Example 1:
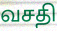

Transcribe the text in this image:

வசதி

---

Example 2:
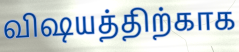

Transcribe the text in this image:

விஷயத்திற்காக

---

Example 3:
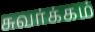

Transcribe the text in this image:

சுவர்க்கம்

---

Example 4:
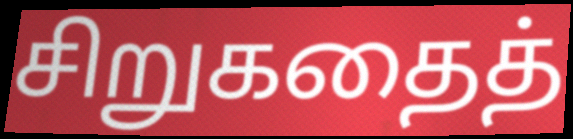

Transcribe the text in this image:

சிறுகதைத்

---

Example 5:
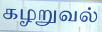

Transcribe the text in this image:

கழறுவல்